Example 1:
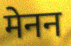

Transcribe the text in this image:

मेनन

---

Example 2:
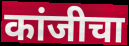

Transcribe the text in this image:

कांजीचा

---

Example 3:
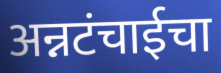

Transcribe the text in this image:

अन्नटंचाईचा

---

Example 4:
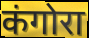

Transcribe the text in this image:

कंगोरा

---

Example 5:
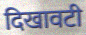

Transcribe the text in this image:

दिखावटी